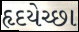
હૃદયેચ્છા